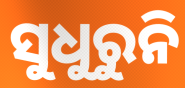
ସୁଧୁରୁନି